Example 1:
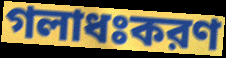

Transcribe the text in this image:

গলাধঃকরণ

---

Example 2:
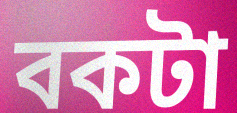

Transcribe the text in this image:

বকটা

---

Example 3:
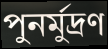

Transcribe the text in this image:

পুনর্মুদ্রণ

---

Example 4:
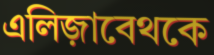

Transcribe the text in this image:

এলিজ়াবেথকে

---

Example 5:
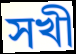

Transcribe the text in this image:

সখী